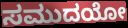
ಸಮುದಯೋ